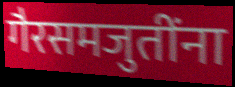
गैरसमजुतींना